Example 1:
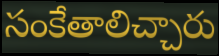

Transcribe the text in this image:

సంకేతాలిచ్చారు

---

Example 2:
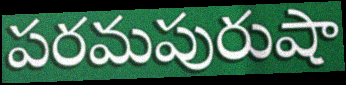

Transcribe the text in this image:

పరమపురుషా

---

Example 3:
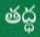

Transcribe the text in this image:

తద్ధ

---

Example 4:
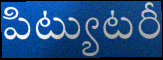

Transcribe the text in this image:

పిట్యుటరీ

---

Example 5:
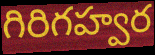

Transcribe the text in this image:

గిరిగహ్వర